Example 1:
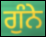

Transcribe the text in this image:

ਗੁੰਨੇ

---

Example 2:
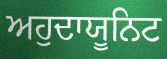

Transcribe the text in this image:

ਅਹੁਦਾਯੂਨਿਟ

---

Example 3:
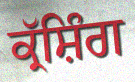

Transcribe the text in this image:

ਕ੍ਰੱਸ਼ਿੰਗ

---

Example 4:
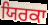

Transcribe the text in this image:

ਯਿਰਕਾ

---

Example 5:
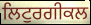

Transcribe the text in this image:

ਲਿਟੁਰਗੀਕਲ